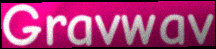
Gravwav